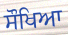
ਸੌਖਿਆ